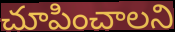
చూపించాలని